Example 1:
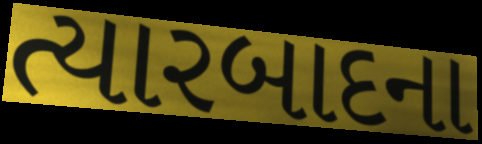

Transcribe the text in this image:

ત્યારબાદના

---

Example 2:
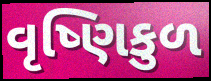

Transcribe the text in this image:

વૃષ્ણિકુળ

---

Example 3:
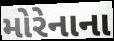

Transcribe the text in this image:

મોરેનાના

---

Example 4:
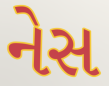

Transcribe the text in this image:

નેસ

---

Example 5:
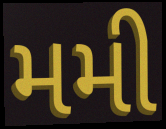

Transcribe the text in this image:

મમી